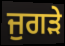
ਜੁਗੜੇ